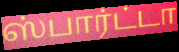
ஸ்பார்ட்டா